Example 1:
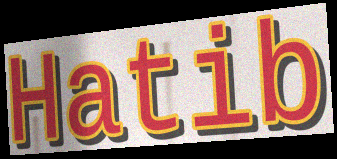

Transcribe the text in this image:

Hatib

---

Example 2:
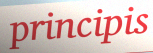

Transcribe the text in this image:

principis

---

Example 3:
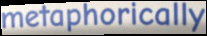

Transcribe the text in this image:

metaphorically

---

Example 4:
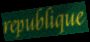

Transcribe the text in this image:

republique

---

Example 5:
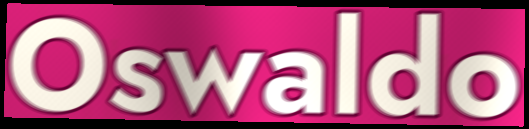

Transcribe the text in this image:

Oswaldo